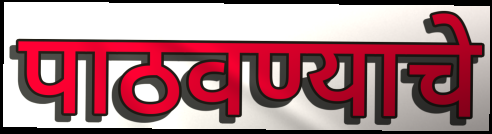
पाठवण्याचे